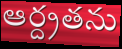
ఆర్ద్రతను